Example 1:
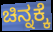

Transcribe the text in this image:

ಚಿನ್ನಕ್ಕೆ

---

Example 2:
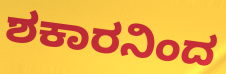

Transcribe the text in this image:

ಶಕಾರನಿಂದ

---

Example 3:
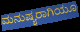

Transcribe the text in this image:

ಮನುಷ್ಯರಾಗಿಯೂ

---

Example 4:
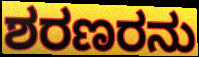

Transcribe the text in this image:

ಶರಣರನು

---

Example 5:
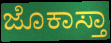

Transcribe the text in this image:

ಜೊಕಾಸ್ತಾ